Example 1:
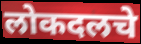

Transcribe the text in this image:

लोकदलचे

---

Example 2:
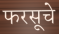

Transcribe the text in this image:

फरसूचे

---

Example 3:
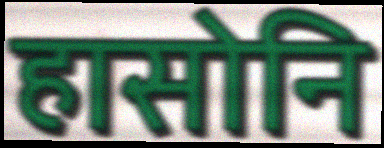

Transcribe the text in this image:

हासोनि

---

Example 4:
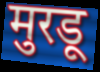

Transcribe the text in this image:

मुरडू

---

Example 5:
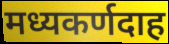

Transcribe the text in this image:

मध्यकर्णदाह